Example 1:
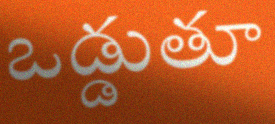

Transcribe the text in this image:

ఒడ్డుతూ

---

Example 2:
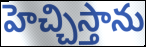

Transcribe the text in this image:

హెచ్చిస్తాను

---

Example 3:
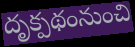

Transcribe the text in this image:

దృక్పథంనుంచి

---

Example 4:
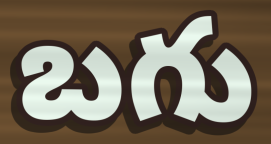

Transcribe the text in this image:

బగు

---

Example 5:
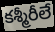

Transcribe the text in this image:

కశ్మీరీలే